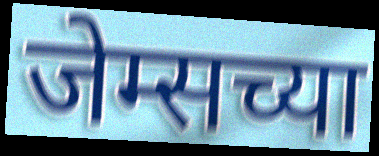
जेम्सच्या